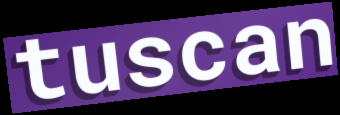
tuscan